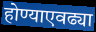
होण्याएवढ्या